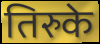
तिरुके